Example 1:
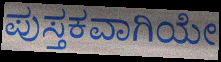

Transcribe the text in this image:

ಪುಸ್ತಕವಾಗಿಯೇ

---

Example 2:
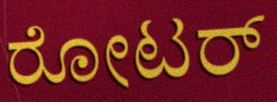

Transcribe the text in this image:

ರೋಟರ್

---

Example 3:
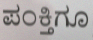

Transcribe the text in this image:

ಪಂಕ್ತಿಗೂ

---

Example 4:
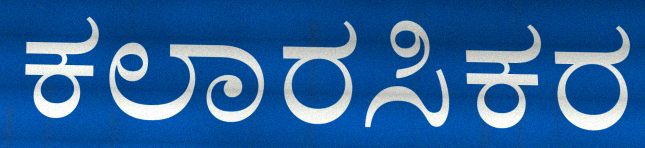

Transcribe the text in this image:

ಕಲಾರಸಿಕರ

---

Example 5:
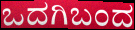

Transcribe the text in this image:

ಒದಗಿಬಂದ